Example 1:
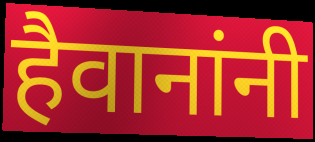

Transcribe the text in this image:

हैवानांनी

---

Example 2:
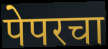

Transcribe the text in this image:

पेपरचा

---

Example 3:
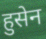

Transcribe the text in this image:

हुसेन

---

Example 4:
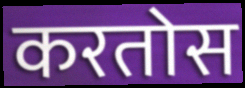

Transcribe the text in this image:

करतोस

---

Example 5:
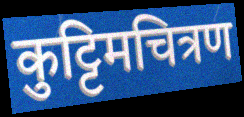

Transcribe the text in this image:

कुट्टिमचित्रण